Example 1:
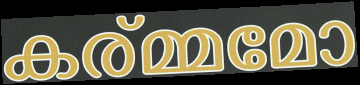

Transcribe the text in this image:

കര്മ്മമോ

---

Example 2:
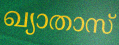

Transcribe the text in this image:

ഖ്യാതാസ്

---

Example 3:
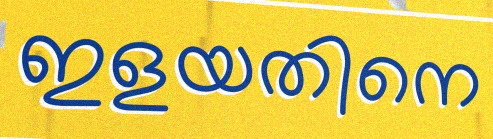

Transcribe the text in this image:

ഇളയതിനെ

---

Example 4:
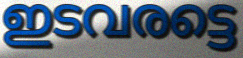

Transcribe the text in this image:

ഇടവരട്ടെ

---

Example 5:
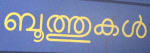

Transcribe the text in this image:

ബൂത്തുകൾ